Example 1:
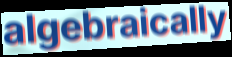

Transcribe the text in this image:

algebraically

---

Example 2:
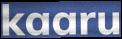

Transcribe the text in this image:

kaaru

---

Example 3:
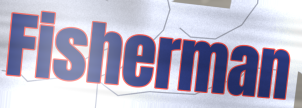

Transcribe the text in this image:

Fisherman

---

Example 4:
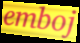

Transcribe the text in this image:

emboj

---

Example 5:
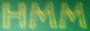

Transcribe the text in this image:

HMM